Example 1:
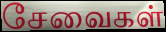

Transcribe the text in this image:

சேவைகள்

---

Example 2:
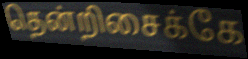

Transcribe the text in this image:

தென்றிசைக்கே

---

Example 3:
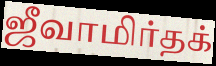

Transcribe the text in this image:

ஜீவாமிர்தக்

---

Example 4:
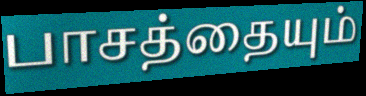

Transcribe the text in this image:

பாசத்தையும்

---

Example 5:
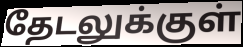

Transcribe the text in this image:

தேடலுக்குள்